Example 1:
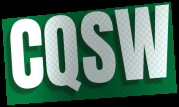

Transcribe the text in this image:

CQSW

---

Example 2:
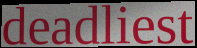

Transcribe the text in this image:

deadliest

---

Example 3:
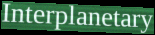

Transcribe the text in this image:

Interplanetary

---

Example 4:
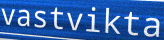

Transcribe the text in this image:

vastvikta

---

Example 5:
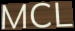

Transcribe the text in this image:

MCL